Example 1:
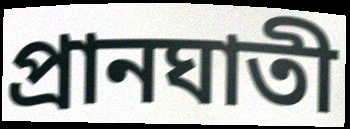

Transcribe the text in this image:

প্রানঘাতী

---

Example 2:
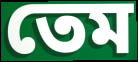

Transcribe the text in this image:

তেম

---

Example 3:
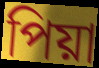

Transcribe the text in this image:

পিয়া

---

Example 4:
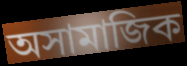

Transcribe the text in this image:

অসামাজিক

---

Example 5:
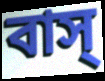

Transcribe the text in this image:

বাস্